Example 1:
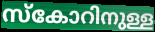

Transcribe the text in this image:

സ്കോറിനുള്ള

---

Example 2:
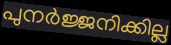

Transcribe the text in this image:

പുനർജ്ജനിക്കില്ല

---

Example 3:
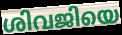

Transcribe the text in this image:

ശിവജിയെ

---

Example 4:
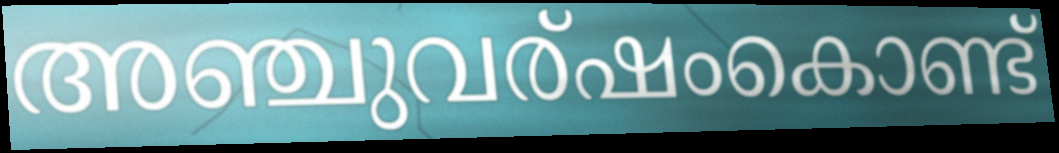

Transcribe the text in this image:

അഞ്ചുവര്ഷംകൊണ്ട്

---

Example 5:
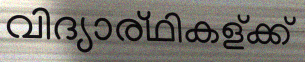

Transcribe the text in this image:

വിദ്യാര്ഥികള്ക്ക്